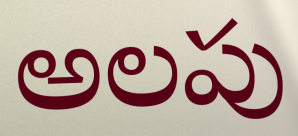
అలపు